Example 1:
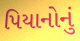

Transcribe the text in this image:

પિયાનોનું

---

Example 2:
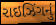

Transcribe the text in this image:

રાઇઝિંગનું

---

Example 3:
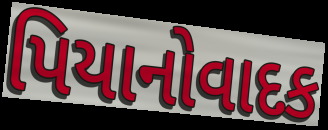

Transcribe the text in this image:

પિયાનોવાદક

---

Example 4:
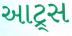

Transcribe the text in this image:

આટ્ર્સ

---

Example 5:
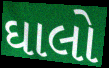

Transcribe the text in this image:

ઘાલો